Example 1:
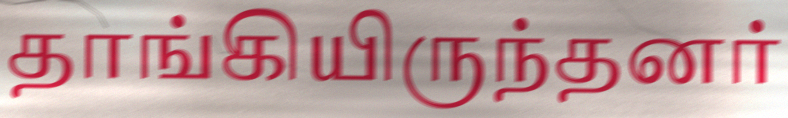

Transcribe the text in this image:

தாங்கியிருந்தனர்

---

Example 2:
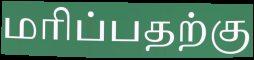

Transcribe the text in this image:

மரிப்பதற்கு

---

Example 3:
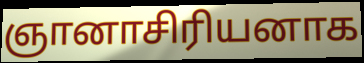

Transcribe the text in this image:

ஞானாசிரியனாக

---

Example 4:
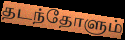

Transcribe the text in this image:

தடந்தோளும்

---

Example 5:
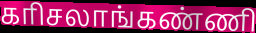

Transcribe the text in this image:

கரிசலாங்கண்ணி